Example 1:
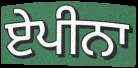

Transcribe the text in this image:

ਏਪੀਨਾ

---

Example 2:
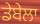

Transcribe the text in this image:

ਡੇਬੇਲਾ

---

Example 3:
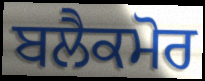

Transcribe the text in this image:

ਬਲੈਕਮੋਰ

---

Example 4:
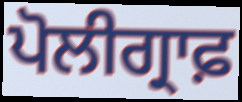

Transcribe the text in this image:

ਪੋਲੀਗ੍ਰਾਫ਼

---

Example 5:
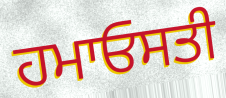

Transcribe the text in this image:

ਹਮਾਓਸਤੀ